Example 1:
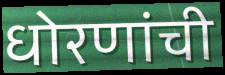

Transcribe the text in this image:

धोरणांची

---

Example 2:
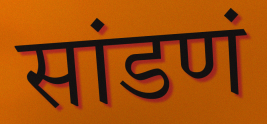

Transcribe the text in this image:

सांडणं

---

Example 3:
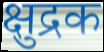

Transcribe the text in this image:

क्षुद्रक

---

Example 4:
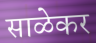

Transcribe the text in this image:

साळेकर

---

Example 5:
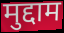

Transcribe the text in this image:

मुद्दाम